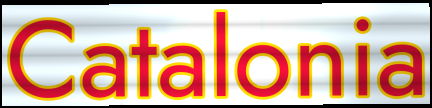
Catalonia